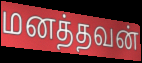
மனத்தவன்